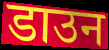
डाउन